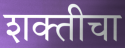
शक्तीचा